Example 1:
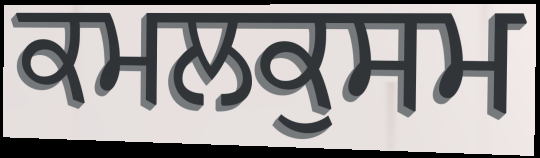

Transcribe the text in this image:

ਕਮਲਕੁਸਮ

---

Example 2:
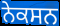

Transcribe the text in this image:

ਨੇਕਸਨ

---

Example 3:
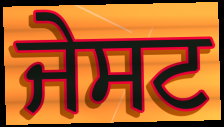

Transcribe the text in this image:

ਜੇਸਟ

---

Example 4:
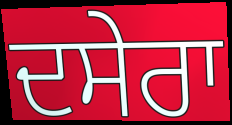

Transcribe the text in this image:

ਦਸੇਰਾ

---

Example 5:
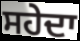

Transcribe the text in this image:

ਸਹੇਦਾ